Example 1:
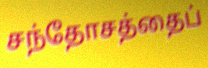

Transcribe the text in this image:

சந்தோசத்தைப்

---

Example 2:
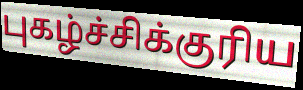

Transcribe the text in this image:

புகழ்ச்சிக்குரிய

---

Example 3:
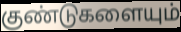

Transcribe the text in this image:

குண்டுகளையும்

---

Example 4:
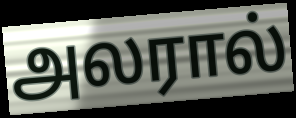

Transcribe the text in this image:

அலரால்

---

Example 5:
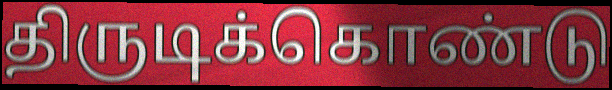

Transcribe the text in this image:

திருடிக்கொண்டு